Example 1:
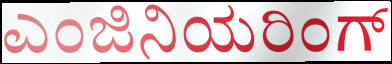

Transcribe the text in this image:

ಎಂಜಿನಿಯರಿಂಗ್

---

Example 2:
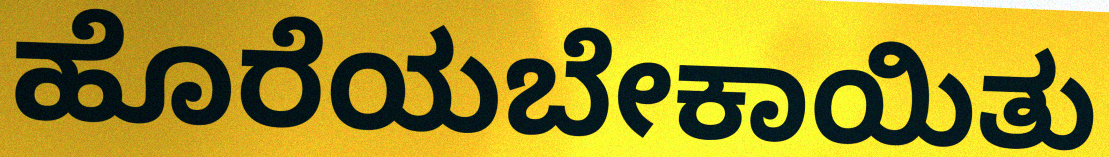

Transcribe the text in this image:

ಹೊರೆಯಬೇಕಾಯಿತು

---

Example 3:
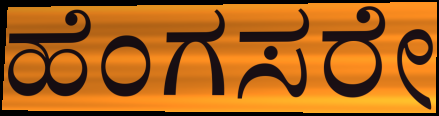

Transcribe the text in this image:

ಹೆಂಗಸರೇ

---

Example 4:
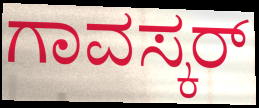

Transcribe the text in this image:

ಗಾವಸ್ಕರ್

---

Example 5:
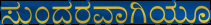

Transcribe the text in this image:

ಸುಂದರವಾಗಿಯೂ